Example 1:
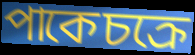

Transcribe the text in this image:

পাকেচক্রে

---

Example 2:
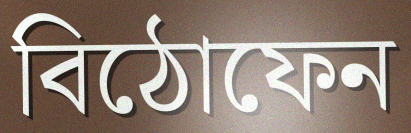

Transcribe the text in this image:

বিঠোফেন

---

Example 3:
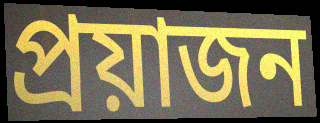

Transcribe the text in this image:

প্রয়াজন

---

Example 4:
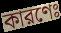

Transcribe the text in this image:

কারণেঃ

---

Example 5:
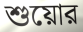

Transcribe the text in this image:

শুয়োর